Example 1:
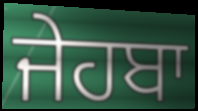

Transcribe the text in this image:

ਜੇਹਬਾ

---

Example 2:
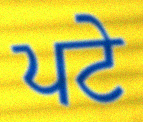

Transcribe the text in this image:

ਪਟੇ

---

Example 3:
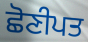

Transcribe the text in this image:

ਛੋਣੀਪਤ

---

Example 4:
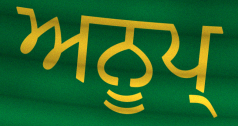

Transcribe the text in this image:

ਅਨੂਪ੍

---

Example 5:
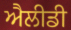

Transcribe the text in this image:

ਐਲੀਡੀ